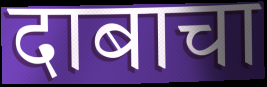
दाबाचा